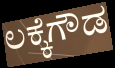
ಲಕ್ಕೆಗೌಡ